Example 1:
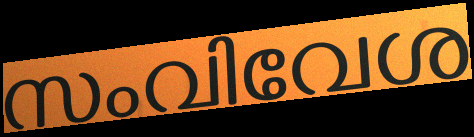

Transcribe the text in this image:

സംവിവേശ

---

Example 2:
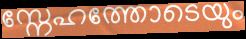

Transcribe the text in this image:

സ്നേഹത്തോടെയും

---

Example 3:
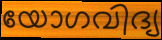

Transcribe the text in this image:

യോഗവിദ്യ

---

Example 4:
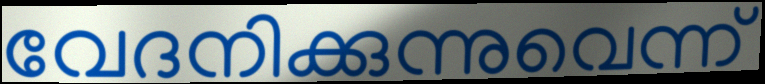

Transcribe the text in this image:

വേദനിക്കുന്നുവെന്ന്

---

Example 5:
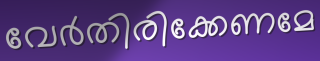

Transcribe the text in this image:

വേർതിരിക്കേണമേ